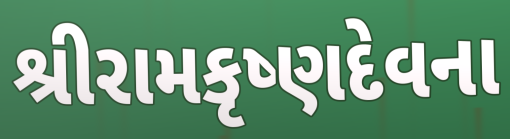
શ્રીરામકૃષ્ણદેવના